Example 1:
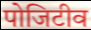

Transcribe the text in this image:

पोजिटीव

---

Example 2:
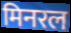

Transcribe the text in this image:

मिनरल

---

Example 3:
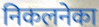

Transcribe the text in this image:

निकलनेका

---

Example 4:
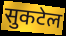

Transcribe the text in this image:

सुकटेल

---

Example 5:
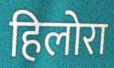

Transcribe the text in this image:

हिलोरा